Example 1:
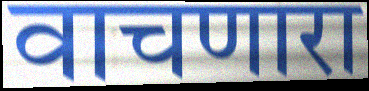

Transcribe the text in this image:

वाचणारा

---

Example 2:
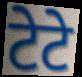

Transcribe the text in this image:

टेटे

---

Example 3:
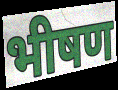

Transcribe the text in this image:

भीषण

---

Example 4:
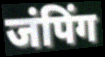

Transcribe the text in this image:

जंपिंग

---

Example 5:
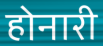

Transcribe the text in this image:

होनारी